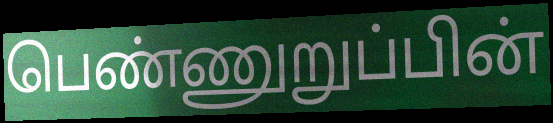
பெண்ணுறுப்பின்